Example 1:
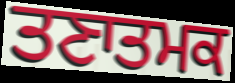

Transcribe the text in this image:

ਤਣਾਤਮਕ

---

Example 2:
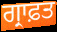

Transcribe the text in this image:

ਗ੍ਰਾਫ਼ਤ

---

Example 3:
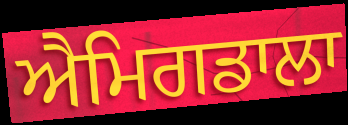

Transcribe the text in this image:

ਐਮਿਗਡਾਲਾ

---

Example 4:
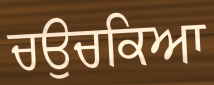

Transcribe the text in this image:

ਚਉਚਕਿਆ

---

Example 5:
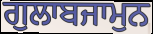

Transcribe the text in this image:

ਗੁਲਾਬਜਾਮੁਨ